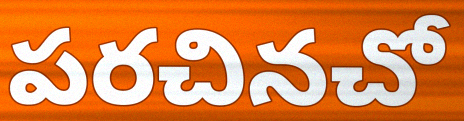
పరచినచో